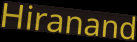
Hiranand